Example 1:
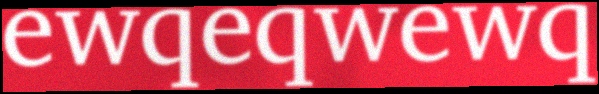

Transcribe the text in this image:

ewqeqwewq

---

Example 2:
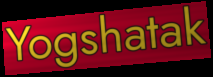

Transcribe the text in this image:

Yogshatak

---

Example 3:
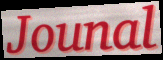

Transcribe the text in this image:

Jounal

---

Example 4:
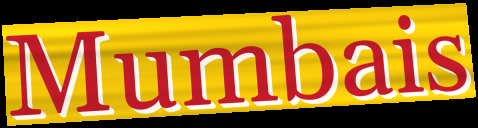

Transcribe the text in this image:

Mumbais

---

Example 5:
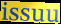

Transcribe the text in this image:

issuu